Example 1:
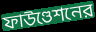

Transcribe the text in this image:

ফাউণ্ডেশনের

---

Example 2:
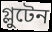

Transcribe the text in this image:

গ্লুটেন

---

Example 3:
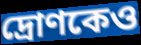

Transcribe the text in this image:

দ্রোণকেও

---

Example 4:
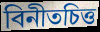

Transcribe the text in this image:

বিনীতচিত্ত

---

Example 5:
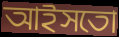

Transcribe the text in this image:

আইসতো